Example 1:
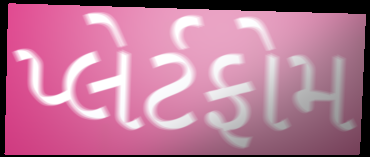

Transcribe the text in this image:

પ્લેર્ટફોમ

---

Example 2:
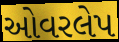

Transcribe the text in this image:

ઓવરલેપ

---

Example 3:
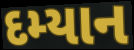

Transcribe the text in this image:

દમ્યાન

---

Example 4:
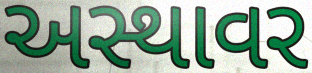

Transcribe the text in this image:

અસ્થાવર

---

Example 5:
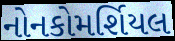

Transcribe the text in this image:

નોનકોમર્શિયલ